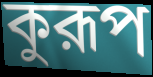
কুরূপ